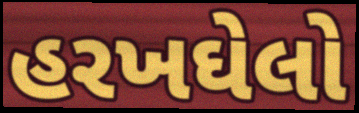
હરખઘેલો